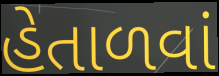
હેતાળવાં